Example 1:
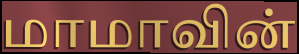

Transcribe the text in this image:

மாமாவின்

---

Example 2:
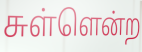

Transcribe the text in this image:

சுள்ளென்ற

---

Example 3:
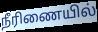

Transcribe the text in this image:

நீரிணையில்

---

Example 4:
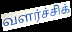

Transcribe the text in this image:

வளர்ச்சிக்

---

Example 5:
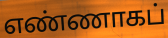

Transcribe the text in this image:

எண்ணாகப்